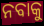
ନବାକୁ